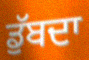
ਡੁੱਬਦਾ